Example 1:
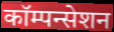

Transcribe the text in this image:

कॉम्पन्सेशन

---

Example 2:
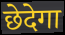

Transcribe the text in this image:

छेदेगा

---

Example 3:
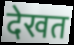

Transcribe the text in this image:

देखत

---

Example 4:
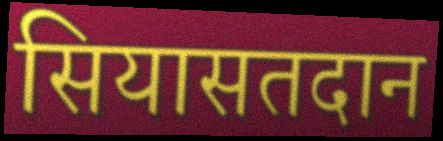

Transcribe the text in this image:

सियासतदान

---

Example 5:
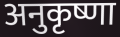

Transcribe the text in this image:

अनुकृष्णा